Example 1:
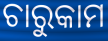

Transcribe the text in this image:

ଚାରୁକାମ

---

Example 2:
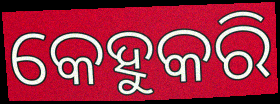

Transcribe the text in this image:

କେହୁକରି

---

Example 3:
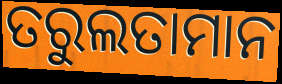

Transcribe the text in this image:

ତରୁଲତାମାନ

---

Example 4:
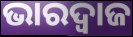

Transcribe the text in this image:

ଭାରଦ୍ୱାଜ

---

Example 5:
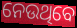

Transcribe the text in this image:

ନେଉଥିବେ